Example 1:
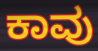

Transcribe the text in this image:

ಕಾವು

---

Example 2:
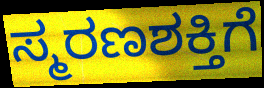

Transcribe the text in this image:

ಸ್ಮರಣಶಕ್ತಿಗೆ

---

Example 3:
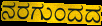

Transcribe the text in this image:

ನರಗುಂದದ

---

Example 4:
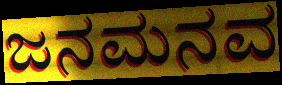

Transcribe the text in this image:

ಜನಮನವ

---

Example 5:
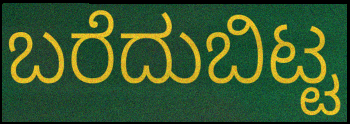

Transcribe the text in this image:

ಬರೆದುಬಿಟ್ಟ